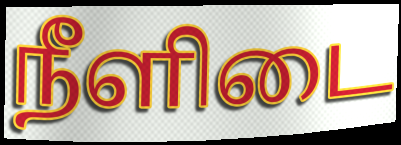
நீளிடை